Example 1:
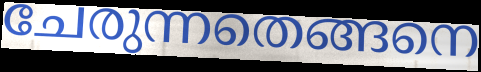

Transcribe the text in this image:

ചേരുന്നതെങ്ങനെ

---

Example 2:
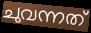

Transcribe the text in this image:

ചുവന്നത്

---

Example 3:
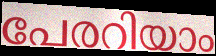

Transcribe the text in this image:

പേരറിയാം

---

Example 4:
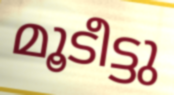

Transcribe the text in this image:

മൂടീട്ടു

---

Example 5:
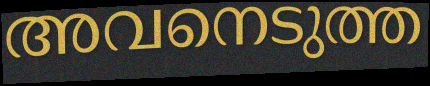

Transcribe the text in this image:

അവനെടുത്ത